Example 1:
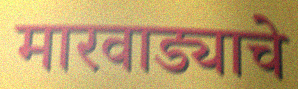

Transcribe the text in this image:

मारवाड्याचे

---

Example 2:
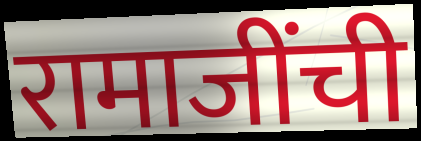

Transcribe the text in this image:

रामाजींची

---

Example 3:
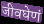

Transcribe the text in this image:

जीवघेणं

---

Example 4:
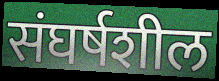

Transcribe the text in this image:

संघर्षशील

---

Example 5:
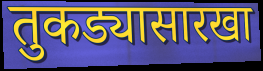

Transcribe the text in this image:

तुकड्यासारखा